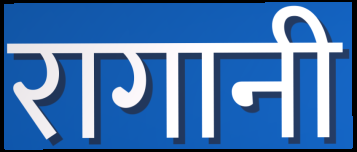
रागानी